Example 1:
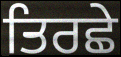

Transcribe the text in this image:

ਤਿਰਛੇ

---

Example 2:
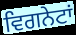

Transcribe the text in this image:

ਵਿਗਨੇਟਾਂ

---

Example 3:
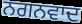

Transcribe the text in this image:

ਨਗਨਵਾਦ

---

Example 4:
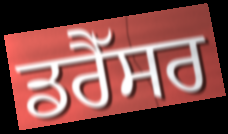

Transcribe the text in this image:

ਡਰੈੱਸਰ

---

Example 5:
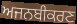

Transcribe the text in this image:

ਅਜਨਬੀਕਰਣ